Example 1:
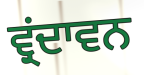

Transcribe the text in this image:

ਵ੍ਰਂਦਾਵਨ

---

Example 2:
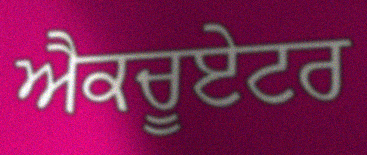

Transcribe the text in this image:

ਐਕਚੂਏਟਰ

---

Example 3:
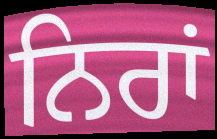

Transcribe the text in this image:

ਨਿਰਾਂ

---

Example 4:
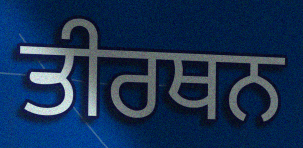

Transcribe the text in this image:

ਤੀਰਥਨ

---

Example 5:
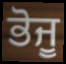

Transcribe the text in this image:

ਭੋਜੂ